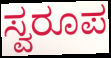
ಸ್ವರೂಪ